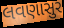
લવણાસુર